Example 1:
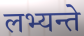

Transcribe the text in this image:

लभ्यन्ते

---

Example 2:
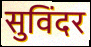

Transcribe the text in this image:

सुविंदर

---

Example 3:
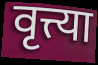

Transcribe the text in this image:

वृत्त्या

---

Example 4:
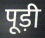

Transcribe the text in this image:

पूड़ी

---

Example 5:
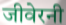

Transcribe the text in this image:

जीवेरनी